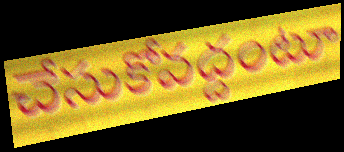
చేసుకోవద్దంటూ